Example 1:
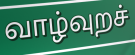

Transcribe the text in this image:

வாழ்வுறச்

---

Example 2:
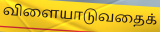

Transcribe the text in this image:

விளையாடுவதைக்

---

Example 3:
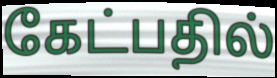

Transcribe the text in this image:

கேட்பதில்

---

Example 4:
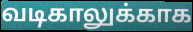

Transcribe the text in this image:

வடிகாலுக்காக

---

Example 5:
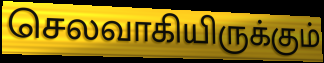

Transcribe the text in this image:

செலவாகியிருக்கும்